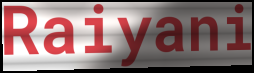
Raiyani